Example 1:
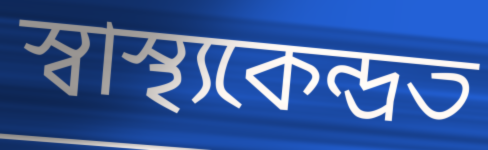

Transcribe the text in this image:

স্বাস্থ্যকেন্দ্ৰত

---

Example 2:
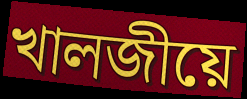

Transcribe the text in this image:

খালজীয়ে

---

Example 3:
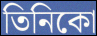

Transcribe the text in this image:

তিনিকো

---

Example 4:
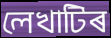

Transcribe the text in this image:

লেখাটিৰ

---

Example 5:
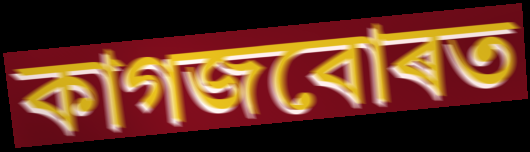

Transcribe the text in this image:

কাগজবোৰত